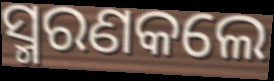
ସ୍ମରଣକଲେ